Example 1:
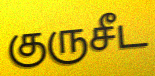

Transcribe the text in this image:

குருசீட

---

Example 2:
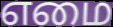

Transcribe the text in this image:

எமை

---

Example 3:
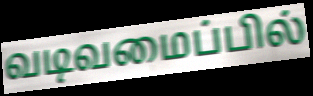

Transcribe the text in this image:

வடிவமைப்பில்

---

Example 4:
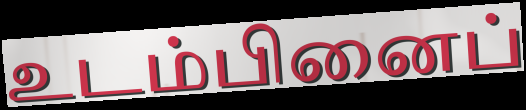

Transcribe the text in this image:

உடம்பினைப்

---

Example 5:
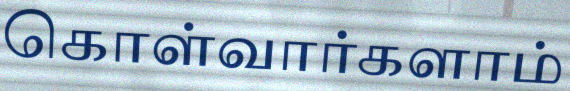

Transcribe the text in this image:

கொள்வார்களாம்